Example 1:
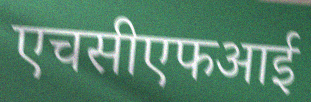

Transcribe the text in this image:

एचसीएफआई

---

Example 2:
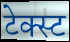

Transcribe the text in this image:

टेक्स्ट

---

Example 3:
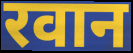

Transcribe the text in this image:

रवान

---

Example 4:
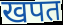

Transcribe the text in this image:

खपत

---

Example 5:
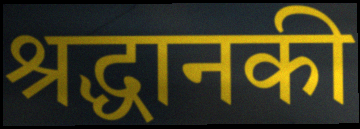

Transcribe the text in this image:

श्रद्धानकी